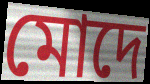
মোদে